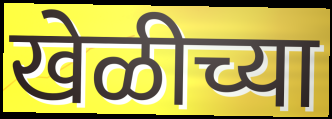
खेळीच्या